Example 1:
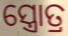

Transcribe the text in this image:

ସ୍ତ୍ରୋତ୍ର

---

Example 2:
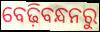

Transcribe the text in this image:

ବେଢ଼ିବନ୍ଧନରୁ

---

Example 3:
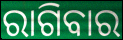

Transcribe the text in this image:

ରାଗିବାର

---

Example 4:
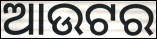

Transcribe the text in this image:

ଆଉଟର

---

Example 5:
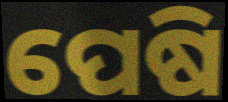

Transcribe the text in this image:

ପେଷି